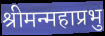
श्रीमन्महाप्रभु